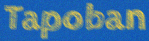
Tapoban